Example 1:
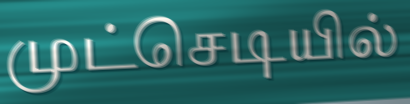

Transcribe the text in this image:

முட்செடியில்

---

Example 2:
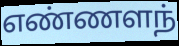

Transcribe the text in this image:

எண்ணளந்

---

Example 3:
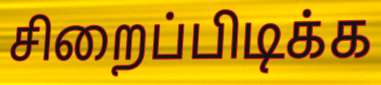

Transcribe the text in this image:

சிறைப்பிடிக்க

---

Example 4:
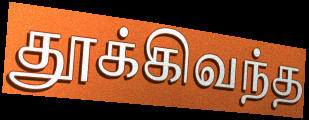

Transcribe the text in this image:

தூக்கிவந்த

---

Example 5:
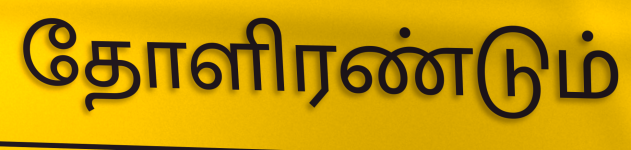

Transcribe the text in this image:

தோளிரண்டும்